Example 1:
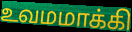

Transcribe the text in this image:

உவமமாக்கி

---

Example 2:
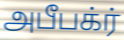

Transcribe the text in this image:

அபீபக்ர்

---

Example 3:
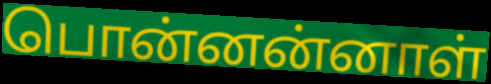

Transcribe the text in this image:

பொன்னன்னாள்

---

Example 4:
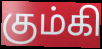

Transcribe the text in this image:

கும்கி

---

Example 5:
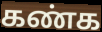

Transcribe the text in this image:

கண்க